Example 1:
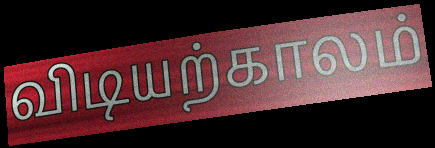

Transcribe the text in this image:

விடியற்காலம்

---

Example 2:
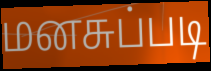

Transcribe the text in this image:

மனசுப்படி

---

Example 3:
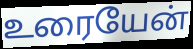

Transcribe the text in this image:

உரையேன்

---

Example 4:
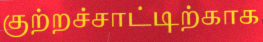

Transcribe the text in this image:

குற்றச்சாட்டிற்காக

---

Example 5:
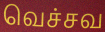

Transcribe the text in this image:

வெச்சவ